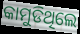
କାମୁଡିଥିଲେ